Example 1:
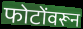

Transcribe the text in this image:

फोटोंवरून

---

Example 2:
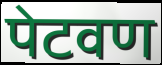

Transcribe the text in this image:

पेटवण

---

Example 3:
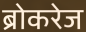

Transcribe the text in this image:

ब्रोकरेज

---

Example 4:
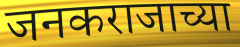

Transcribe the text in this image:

जनकराजाच्या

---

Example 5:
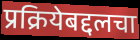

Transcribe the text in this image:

प्रक्रियेबद्दलचा